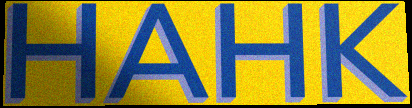
HAHK